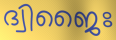
ദ്വിജൈഃ